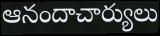
ఆనందాచార్యులు